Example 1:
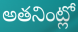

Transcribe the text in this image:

అతనింట్లో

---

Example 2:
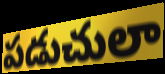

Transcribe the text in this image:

పడుచులా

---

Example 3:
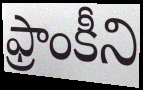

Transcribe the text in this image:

ఫ్రాంకీని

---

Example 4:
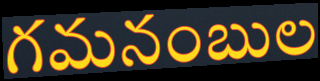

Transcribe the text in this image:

గమనంబుల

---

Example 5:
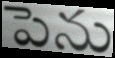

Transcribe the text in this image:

పెను